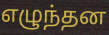
எழுந்தன